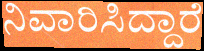
ನಿವಾರಿಸಿದ್ದಾರೆ